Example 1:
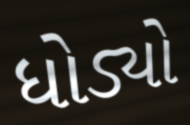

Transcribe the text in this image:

ધોડ્યો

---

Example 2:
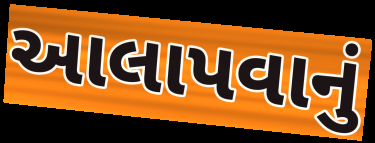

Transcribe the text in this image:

આલાપવાનું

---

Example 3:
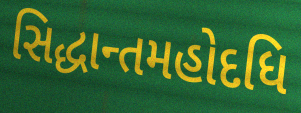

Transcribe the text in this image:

સિદ્ધાન્તમહોદધિ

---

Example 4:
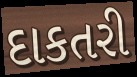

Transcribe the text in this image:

દાકતરી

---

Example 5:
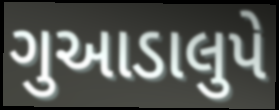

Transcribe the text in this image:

ગુઆડાલુપે